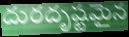
దురదృష్టమైన